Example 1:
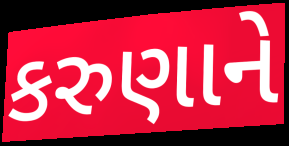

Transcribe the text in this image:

કરુણાને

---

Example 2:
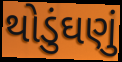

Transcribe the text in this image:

થોડુંઘણું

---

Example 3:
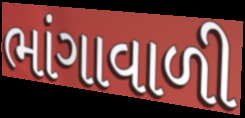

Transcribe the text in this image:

ભાંગાવાળી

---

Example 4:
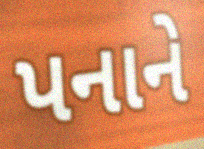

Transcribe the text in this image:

પનાને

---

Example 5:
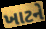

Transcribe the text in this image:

ખાટને